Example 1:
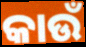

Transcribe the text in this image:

କାଉଁ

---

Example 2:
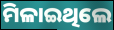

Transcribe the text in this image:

ମିଳାଇଥିଲେ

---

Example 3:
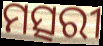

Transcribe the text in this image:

ମତ୍ସରୀ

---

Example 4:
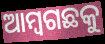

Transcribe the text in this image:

ଆମ୍ବଗଛକୁ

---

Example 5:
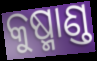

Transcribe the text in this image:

କୁଷ୍ମାଣ୍ଡ